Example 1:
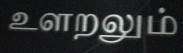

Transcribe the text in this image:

உளறலும்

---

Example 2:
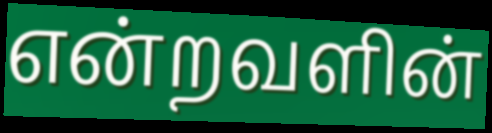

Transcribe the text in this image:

என்றவளின்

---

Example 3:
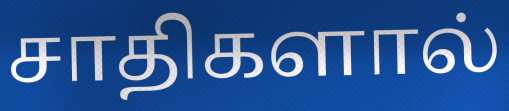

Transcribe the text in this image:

சாதிகளால்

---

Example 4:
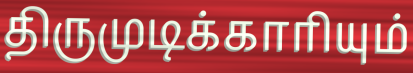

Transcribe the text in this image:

திருமுடிக்காரியும்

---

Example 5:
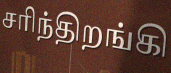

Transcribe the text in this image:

சரிந்திறங்கி